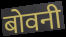
बोवनी